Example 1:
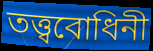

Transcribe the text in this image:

তত্ত্ববোধিনী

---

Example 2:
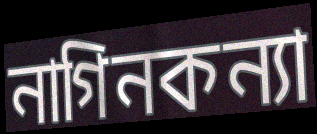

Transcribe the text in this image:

নাগিনকন্যা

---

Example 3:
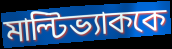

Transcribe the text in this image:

মাল্টিভ্যাককে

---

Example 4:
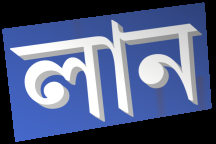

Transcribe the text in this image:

লান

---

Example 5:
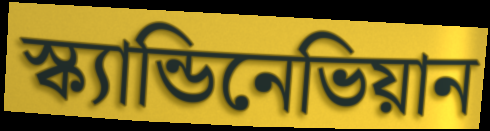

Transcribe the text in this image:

স্ক্যান্ডিনেভিয়ান